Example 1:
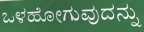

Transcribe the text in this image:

ಒಳಹೋಗುವುದನ್ನು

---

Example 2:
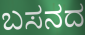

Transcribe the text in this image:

ಬಸನದ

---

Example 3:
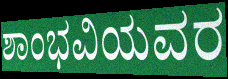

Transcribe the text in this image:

ಶಾಂಭವಿಯವರ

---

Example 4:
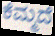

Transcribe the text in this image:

ಕೆಮ್ಮದೆ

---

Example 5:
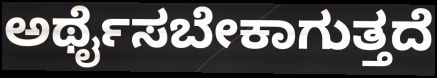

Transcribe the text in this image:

ಅರ್ಥೈಸಬೇಕಾಗುತ್ತದೆ